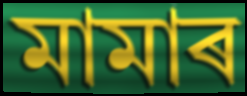
মামাৰ